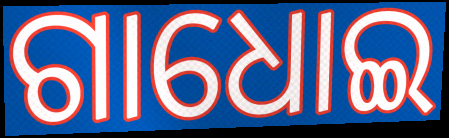
ଗାଧୋଇ